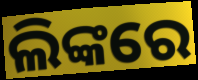
ଲିଙ୍କରେ